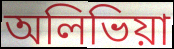
অলিভিয়া